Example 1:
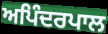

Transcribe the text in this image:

ਅਪਿੰਦਰਪਾਲ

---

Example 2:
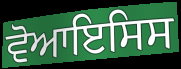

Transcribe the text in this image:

ਵੋਆਇਸਿਸ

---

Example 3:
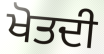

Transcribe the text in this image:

ਖੋਤਦੀ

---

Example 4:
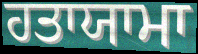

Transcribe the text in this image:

ਹਤਾਯਾਮਾ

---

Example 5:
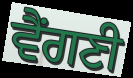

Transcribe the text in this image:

ਵੈਂਗਣੀ